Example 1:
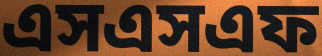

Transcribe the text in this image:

এসএসএফ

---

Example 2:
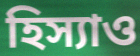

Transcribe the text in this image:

হিস্যাও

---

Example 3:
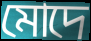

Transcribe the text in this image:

মোদে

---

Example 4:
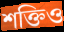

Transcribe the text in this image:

শক্তিও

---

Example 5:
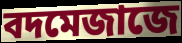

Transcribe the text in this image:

বদমেজাজে